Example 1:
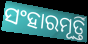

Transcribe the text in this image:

ସଂହାରମୂର୍ତ୍ତି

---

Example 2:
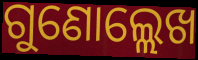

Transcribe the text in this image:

ଗୁଣୋଲ୍ଲେଖ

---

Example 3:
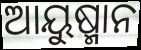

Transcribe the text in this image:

ଆୟୁଷ୍ମାନ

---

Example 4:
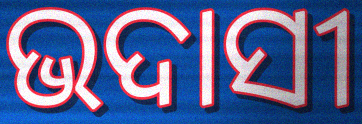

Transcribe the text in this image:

ଭଦାସୀ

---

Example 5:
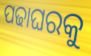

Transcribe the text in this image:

ପଢାଘରକୁ